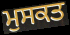
ਮੁਸਕਤ